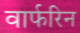
वार्फरिन